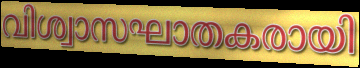
വിശ്വാസഘാതകരായി